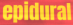
epidural